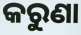
କରୁଣା